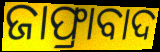
ଜାଫ୍ରାବାଦ